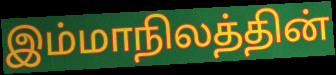
இம்மாநிலத்தின்